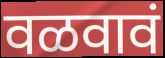
वळवावं